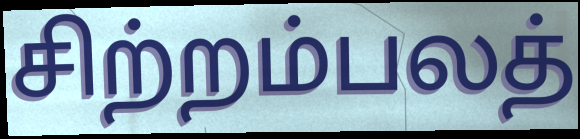
சிற்றம்பலத்